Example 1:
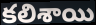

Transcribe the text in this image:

కలిశాయి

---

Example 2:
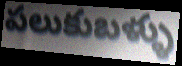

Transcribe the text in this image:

పలుకుబళ్ళు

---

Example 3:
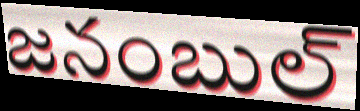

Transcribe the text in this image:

జనంబుల్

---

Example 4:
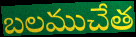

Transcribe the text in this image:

బలముచేత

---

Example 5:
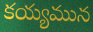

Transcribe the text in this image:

కయ్యమున